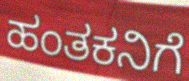
ಹಂತಕನಿಗೆ